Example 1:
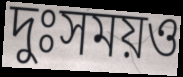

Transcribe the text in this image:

দুঃসময়ও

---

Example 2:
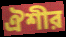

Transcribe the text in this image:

ঐশীর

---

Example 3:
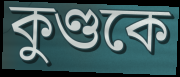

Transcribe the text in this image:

কুণ্ডকে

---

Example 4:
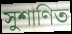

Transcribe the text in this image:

সুশাণিত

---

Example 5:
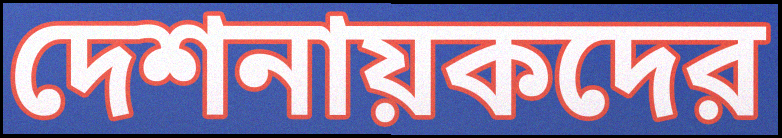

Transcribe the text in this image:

দেশনায়কদের